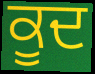
ਕੂਦ